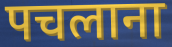
पचलाना